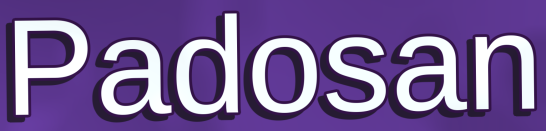
Padosan